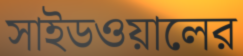
সাইডওয়ালের